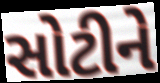
સોટીને